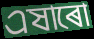
এষাৰো